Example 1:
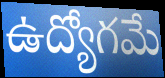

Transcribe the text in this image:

ఉద్యోగమే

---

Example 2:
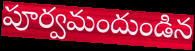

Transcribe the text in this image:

పూర్వమందుండిన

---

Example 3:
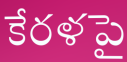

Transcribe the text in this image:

కేరళపై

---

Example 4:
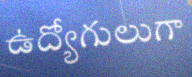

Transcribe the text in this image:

ఉద్యోగులుగా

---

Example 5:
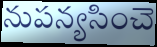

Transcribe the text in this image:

నుపన్యసించె